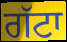
ਗੱਟਾ